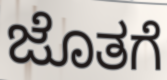
ಜೊತಗೆ